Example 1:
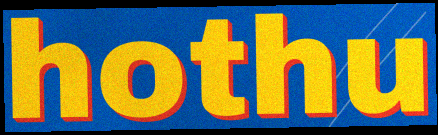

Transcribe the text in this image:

hothu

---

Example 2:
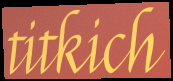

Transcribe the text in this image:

titkich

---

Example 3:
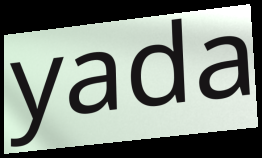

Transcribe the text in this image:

yada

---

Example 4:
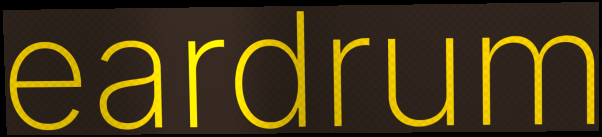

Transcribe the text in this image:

eardrum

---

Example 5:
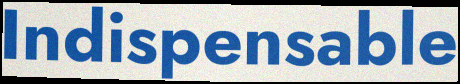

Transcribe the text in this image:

Indispensable